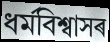
ধৰ্মবিশ্বাসৰ